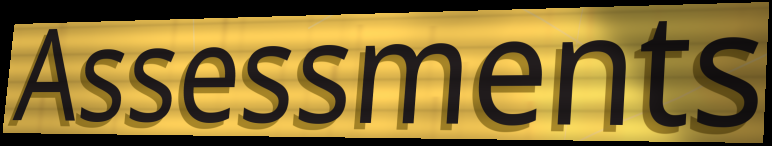
Assessments